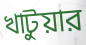
খাটুয়ার